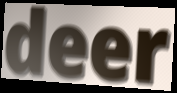
deer